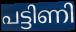
പട്ടിണി